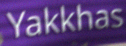
Yakkhas